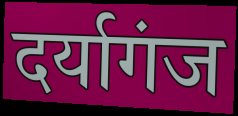
दर्यागंज